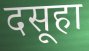
दसूहा